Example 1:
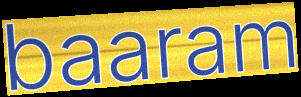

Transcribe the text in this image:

baaram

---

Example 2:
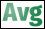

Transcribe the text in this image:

Avg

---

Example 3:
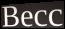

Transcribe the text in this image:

Becc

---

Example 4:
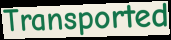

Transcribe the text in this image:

Transported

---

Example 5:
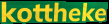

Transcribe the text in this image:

kottheke